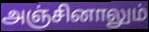
அஞ்சினாலும்